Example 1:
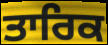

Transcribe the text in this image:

ਤਾਰਿਕ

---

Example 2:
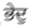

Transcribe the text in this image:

ਭੇਦੁ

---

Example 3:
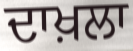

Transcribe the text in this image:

ਦਾਖ਼ਲਾ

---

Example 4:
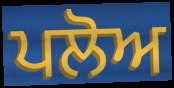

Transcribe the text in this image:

ਪਲੋਅ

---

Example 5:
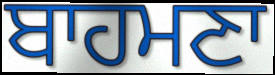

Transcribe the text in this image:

ਬਾਹਮਣਾ